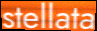
stellata